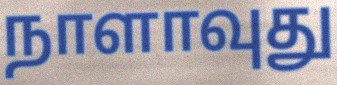
நாளாவுது